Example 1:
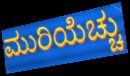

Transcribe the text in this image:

ಮುರಿಯೆಚ್ಚು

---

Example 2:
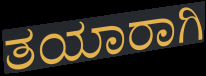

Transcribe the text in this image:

ತಯಾರಾಗಿ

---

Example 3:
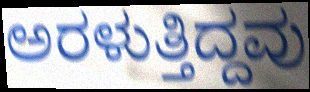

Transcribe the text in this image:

ಅರಳುತ್ತಿದ್ದವು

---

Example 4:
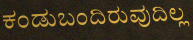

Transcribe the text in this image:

ಕಂಡುಬಂದಿರುವುದಿಲ್ಲ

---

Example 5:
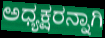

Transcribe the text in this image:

ಅಧ್ಯಕ್ಷರನ್ನಾಗಿ